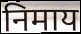
निमाय